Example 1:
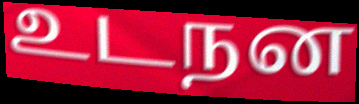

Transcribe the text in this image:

உடநன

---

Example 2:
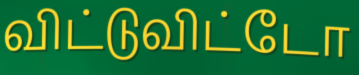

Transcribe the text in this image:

விட்டுவிட்டோ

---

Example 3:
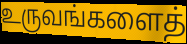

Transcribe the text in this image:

உருவங்களைத்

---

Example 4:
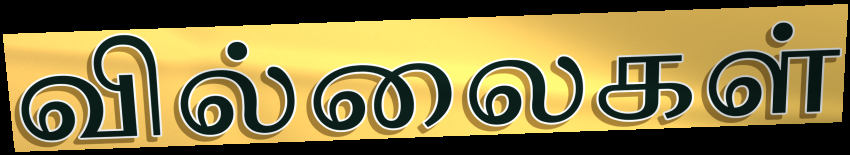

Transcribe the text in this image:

வில்லைகள்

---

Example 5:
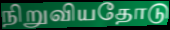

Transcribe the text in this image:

நிறுவியதோடு